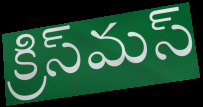
క్రిస్‌మస్